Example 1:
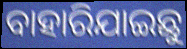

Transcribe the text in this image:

ବାହାରିଯାଇଛୁ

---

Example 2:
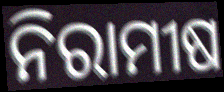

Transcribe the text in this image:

ନିରାମୀଷ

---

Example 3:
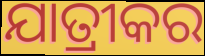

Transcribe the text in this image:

ଯାତ୍ରୀକର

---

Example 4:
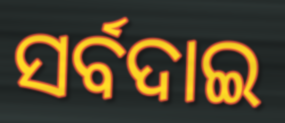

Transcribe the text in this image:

ସର୍ବଦାଇ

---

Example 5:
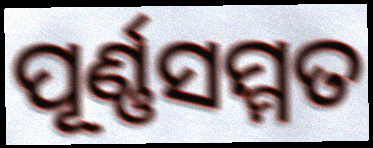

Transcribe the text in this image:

ପୂର୍ଣ୍ଣସମ୍ମତ